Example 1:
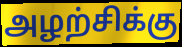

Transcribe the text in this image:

அழற்சிக்கு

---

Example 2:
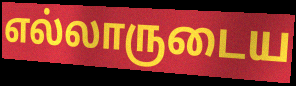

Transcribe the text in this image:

எல்லாருடைய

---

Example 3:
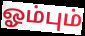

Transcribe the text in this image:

ஓம்பும்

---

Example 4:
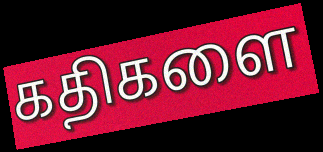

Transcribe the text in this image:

கதிகளை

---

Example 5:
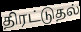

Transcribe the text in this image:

திரட்டுதல்